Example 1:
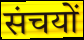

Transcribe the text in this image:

संचयों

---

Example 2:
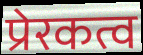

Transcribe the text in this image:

प्रेरकत्व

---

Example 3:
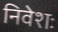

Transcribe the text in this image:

निवेशः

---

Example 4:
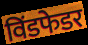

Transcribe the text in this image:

विंडफेडर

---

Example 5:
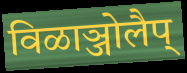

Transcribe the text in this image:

विळाञ्जोलैप्